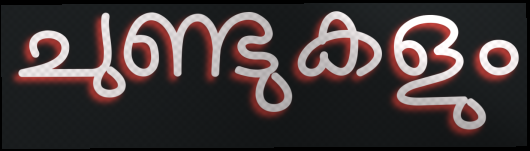
ചുണ്ടുകളും